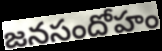
జనసందోహం